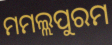
ମମଲ୍ଲପୁରମ